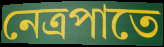
নেত্রপাতে